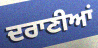
ਦਰਾਣੀਆਂ